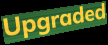
Upgraded